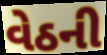
વેઠની